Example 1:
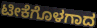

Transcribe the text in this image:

ಟೀಕೆಗೊಳಗಾದ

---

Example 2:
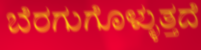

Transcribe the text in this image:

ಬೆರಗುಗೊಳ್ಳುತ್ತದೆ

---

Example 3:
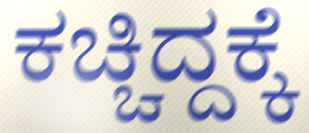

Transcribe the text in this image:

ಕಚ್ಚಿದ್ದಕ್ಕೆ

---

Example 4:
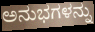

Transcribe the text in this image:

ಅನುಭಗಳನ್ನು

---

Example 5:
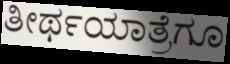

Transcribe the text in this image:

ತೀರ್ಥಯಾತ್ರೆಗೂ